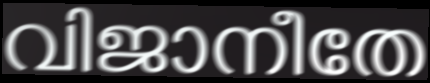
വിജാനീതേ